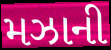
મઝાની